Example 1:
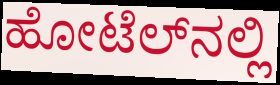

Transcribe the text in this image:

ಹೋಟೆಲ್‌ನಲ್ಲಿ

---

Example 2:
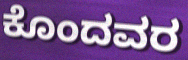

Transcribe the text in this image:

ಕೊಂದವರ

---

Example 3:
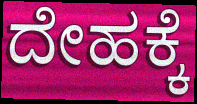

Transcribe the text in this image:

ದೇಹಕ್ಕೆ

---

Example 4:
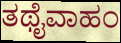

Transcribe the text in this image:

ತಥೈವಾಹಂ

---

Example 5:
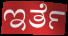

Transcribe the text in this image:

ಇರ್ತೆ